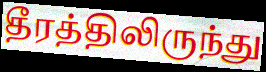
தீரத்திலிருந்து